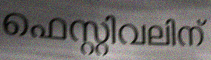
ഫെസ്റ്റിവലിന്